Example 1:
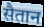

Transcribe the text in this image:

सैतान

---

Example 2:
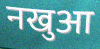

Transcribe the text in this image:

नखुआ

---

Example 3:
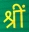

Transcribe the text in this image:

श्रीं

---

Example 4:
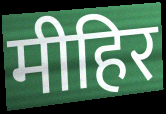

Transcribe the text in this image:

मीहिर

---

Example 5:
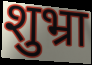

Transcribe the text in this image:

शुभ्रा